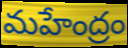
మహేంద్రం